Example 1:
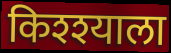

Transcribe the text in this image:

किश्श्याला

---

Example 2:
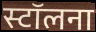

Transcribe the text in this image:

स्टॉलना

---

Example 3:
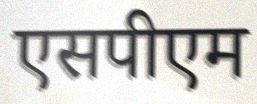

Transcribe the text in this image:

एसपीएम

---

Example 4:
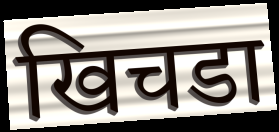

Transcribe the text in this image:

खिचडा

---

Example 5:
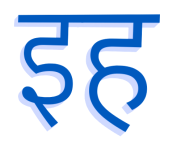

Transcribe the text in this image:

इह